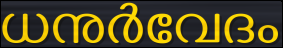
ധനുർവേദം